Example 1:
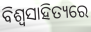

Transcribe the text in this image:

ବିଶ୍ବସାହିତ୍ୟରେ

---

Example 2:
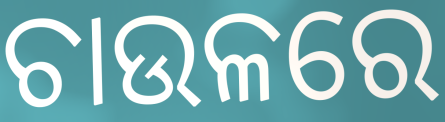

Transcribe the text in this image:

ଚାଉଳରେ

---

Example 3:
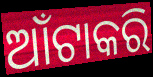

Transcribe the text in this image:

ଆଁଟାକରି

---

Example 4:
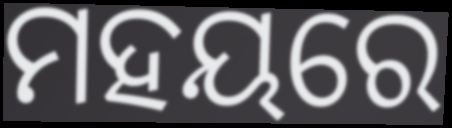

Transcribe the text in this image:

ମହୟରେ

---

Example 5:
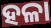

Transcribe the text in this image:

ହଳା